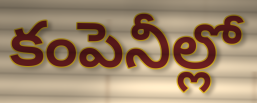
కంపెనీల్లో